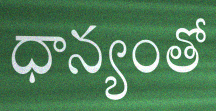
ధాన్యంతో